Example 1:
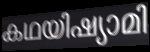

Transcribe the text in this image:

കഥയിഷ്യാമി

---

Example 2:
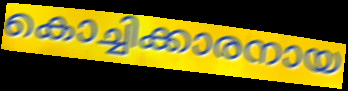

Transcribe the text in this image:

കൊച്ചിക്കാരനായ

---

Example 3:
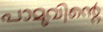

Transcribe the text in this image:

പാമുവിന്റെ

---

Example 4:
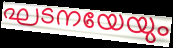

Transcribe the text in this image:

ഘടനയേയും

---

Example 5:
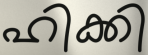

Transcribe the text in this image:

ഹിക്കി